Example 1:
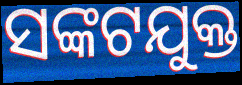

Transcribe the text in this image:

ସଙ୍କଟଯୁକ୍ତ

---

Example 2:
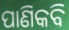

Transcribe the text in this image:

ପାଣିକବି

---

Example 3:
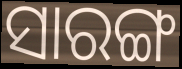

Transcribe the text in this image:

ସାରଙ୍ଗ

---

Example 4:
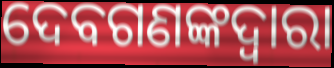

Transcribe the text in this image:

ଦେବଗଣଙ୍କଦ୍ୱାରା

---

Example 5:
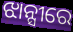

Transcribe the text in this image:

ଝାନ୍ସୀରେ